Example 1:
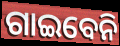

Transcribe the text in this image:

ଗାଇବେନି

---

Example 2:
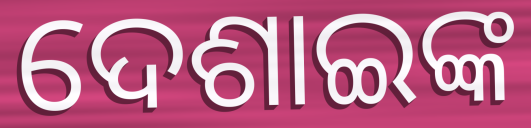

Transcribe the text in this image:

ଦେଶାଇଙ୍କ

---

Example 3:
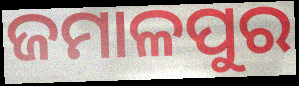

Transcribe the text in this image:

ଜମାଳପୁର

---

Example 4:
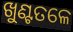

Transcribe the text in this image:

ଖୁଣ୍ଟତଳେ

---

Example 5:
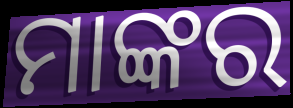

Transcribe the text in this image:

ମାଙ୍କର